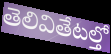
తెలివితేటల్తో